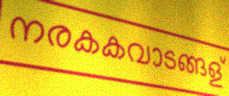
നരകകവാടങ്ങള്